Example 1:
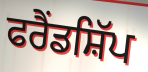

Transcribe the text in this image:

ਫਰੈਂਡਸ਼ਿੱਪ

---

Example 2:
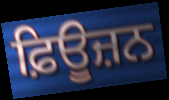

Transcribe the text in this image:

ਫ਼ਿਊਜ਼ਨ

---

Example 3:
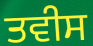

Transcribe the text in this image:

ਤਵੀਸ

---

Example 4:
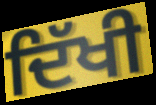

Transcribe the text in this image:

ਦਿੱਖੀ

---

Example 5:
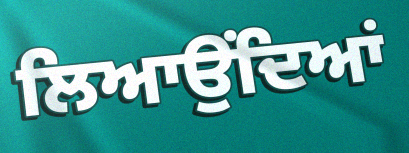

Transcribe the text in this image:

ਲਿਆਉਂਦਿਆਂ